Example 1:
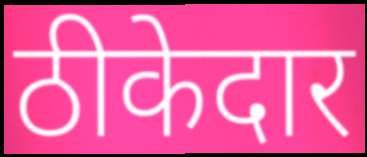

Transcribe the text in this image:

ठीकेदार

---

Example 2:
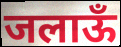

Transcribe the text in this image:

जलाऊँ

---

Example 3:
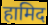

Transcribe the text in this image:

हामिद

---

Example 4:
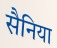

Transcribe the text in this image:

सैनिया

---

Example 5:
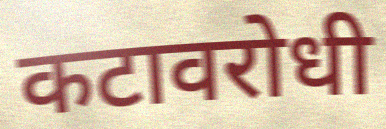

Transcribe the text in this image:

कटावरोधी